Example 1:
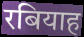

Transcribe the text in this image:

रबियाह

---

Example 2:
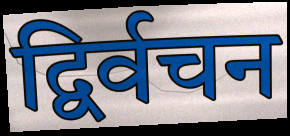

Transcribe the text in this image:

द्विर्वचन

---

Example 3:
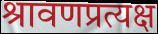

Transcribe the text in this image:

श्रावणप्रत्यक्ष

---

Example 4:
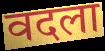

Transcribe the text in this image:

वदला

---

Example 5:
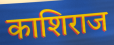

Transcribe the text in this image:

काशिराज